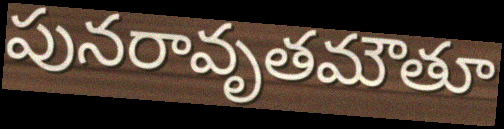
పునరావృతమౌతూ